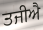
ਤਜੀਐ